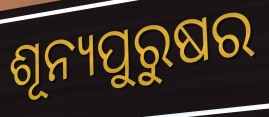
ଶୂନ୍ୟପୁରୁଷର